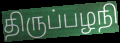
திருப்பழநி